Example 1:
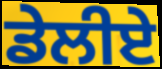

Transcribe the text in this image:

ਡੇਲੀਏ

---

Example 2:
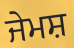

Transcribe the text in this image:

ਜੇਮਸ਼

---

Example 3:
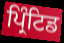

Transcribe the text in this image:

ਪ੍ਰਿੰਟਿਡ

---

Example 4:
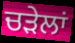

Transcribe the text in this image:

ਚੜੇਲਾਂ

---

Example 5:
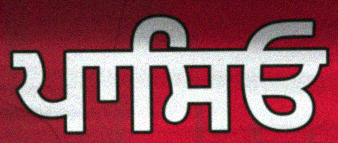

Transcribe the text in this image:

ਪਾਸਿਓ